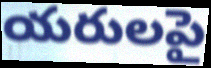
యరులపై